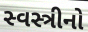
સ્વસ્ત્રીનો